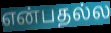
என்பதல்ல